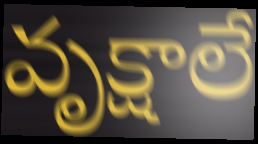
వృక్షాలే